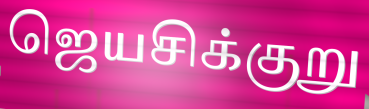
ஜெயசிக்குறு